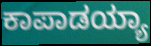
ಕಾಪಾಡಯ್ಯಾ